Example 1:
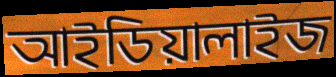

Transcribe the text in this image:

আইডিয়ালাইজ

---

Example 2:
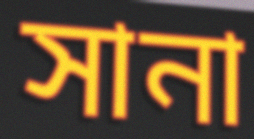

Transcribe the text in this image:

সানা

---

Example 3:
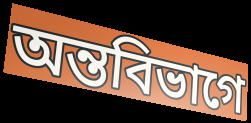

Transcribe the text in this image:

অন্তবিভাগে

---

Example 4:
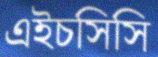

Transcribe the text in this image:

এইচসিসি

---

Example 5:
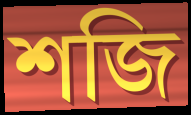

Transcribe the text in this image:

শজি